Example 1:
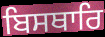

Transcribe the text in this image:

ਬਿਸਥਾਰਿ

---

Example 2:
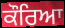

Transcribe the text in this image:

ਕੌਰਿਆ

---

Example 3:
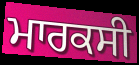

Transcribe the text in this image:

ਮਾਰਕਸੀ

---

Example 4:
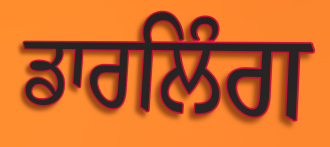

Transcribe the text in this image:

ਡਾਰਲਿੰਗ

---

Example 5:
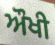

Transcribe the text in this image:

ਔਖੀ